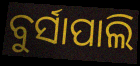
ବୁର୍ସାପାଲି